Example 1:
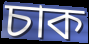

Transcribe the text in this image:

চাক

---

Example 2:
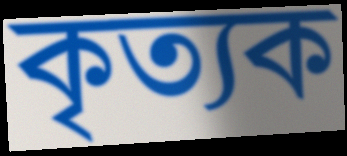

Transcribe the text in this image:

কৃত্যক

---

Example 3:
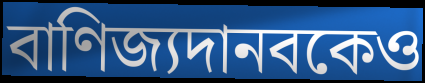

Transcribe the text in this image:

বাণিজ্যদানবকেও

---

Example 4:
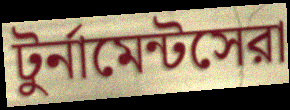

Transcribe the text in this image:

টুর্নামেন্টসেরা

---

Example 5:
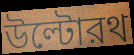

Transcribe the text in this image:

উল্টোরথ